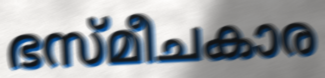
ഭസ്മീചകാര